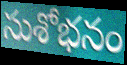
సుశోభనం